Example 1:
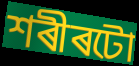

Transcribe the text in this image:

শৰীৰটো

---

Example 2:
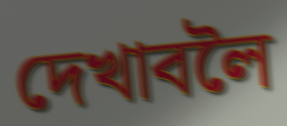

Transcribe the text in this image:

দেখাবলৈ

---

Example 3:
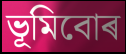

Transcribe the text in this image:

ভূমিবোৰ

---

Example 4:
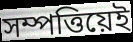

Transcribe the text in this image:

সম্পত্তিয়েই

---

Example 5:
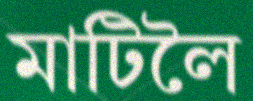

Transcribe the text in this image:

মাটিলৈ